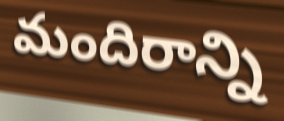
మందిరాన్ని